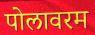
पोलावरम